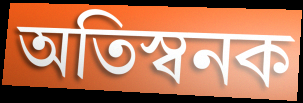
অতিস্বনক